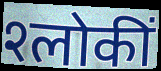
श्लोकीं